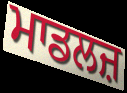
ਮਾਡਲਜ਼